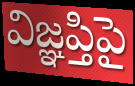
విజ్ఞప్తిపై